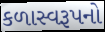
કળાસ્વરૂપનો